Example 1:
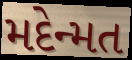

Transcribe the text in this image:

મદેન્મત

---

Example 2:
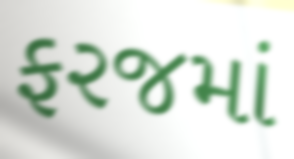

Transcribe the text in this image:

ફરજમાં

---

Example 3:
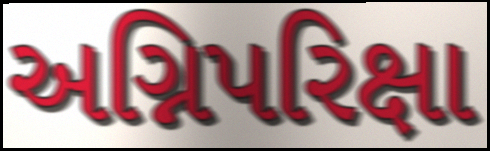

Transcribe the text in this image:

અગ્નિપરિક્ષા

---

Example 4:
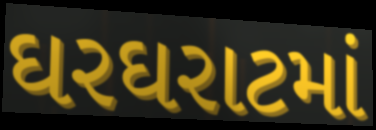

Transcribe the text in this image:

ઘરઘરાટમાં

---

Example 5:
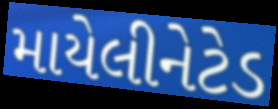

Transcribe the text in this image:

માયેલીનેટેડ